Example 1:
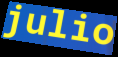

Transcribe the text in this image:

julio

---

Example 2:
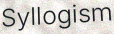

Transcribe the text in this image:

Syllogism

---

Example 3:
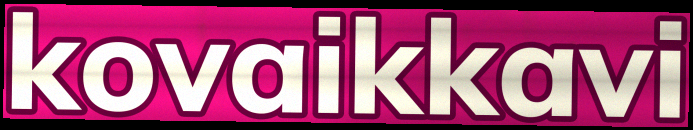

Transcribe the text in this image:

kovaikkavi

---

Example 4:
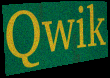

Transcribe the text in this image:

Qwik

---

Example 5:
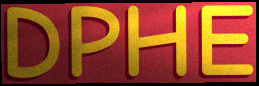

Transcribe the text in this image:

DPHE